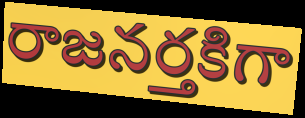
రాజనర్తకిగా